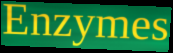
Enzymes